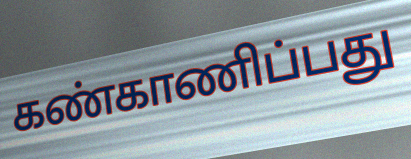
கண்காணிப்பது